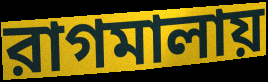
রাগমালায়